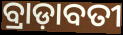
ବ୍ରାଡ଼ାବତୀ